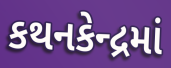
કથનકેન્દ્રમાં